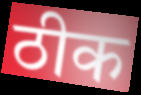
ठीक